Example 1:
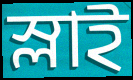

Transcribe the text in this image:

স্লাই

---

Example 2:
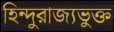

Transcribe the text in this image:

হিন্দুরাজ্যভুক্ত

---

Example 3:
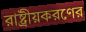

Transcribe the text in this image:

রাষ্ট্রীয়করণের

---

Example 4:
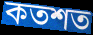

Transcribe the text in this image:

কতশত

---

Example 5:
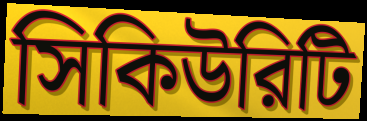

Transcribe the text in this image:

সিকিউরিটি